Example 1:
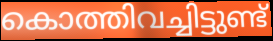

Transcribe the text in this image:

കൊത്തിവച്ചിട്ടുണ്ട്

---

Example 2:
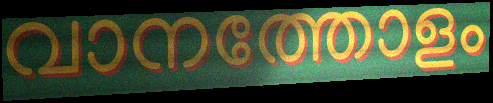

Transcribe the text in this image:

വാനത്തോളം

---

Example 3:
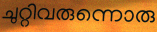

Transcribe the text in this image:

ചുറ്റിവരുന്നൊരു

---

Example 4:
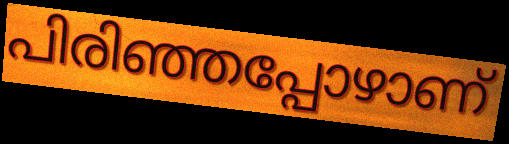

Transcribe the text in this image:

പിരിഞ്ഞപ്പോഴാണ്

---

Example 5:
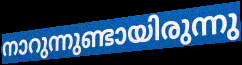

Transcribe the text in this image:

നാറുന്നുണ്ടായിരുന്നു